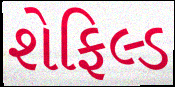
શેફિલ્ડ